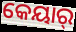
କେୟାର୍